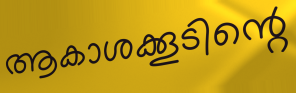
ആകാശക്കൂടിന്റെ